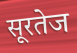
सूरतेज